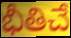
భీతిచే